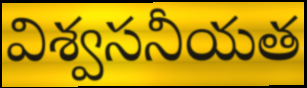
విశ్వసనీయత